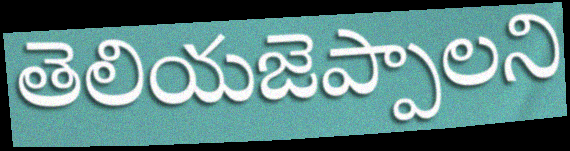
తెలియజెప్పాలని